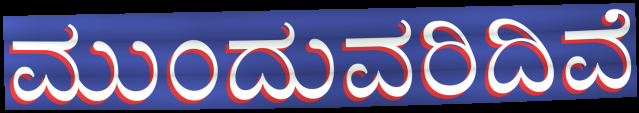
ಮುಂದುವರಿದಿವೆ